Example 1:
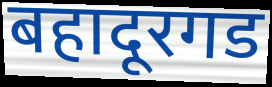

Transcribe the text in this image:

बहादूरगड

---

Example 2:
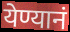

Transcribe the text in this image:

येण्यानं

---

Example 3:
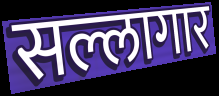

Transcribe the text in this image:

सल्‍लागार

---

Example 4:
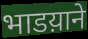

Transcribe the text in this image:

भाडय़ाने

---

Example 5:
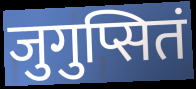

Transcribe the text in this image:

जुगुप्सितं